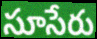
సూసేరు